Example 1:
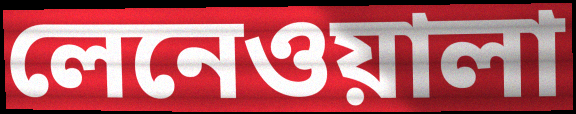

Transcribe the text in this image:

লেনেওয়ালা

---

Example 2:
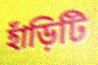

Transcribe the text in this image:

হাঁড়িটি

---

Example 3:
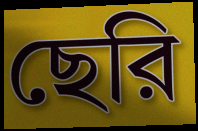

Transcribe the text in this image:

ছেরি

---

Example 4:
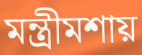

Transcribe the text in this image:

মন্ত্রীমশায়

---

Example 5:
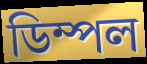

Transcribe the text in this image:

ডিম্পল